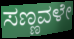
ಸಣ್ಣವಳೇ